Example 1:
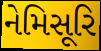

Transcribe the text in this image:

નેમિસૂરિ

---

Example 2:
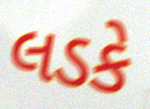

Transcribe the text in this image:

લડકે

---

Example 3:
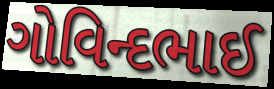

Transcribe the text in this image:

ગોવિન્દભાઈ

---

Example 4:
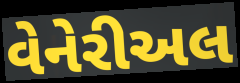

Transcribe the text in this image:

વેનેરીઅલ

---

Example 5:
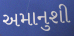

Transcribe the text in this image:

અમાનુશી